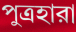
পুত্রহারা